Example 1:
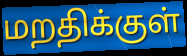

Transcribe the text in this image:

மறதிக்குள்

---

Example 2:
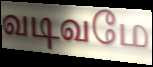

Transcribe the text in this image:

வடிவமே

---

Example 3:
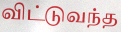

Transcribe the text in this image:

விட்டுவந்த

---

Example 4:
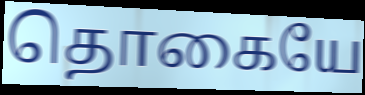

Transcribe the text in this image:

தொகையே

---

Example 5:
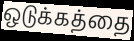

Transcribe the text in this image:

ஒடுக்கத்தை